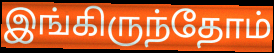
இங்கிருந்தோம்